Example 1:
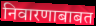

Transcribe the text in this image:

निवारणाबाबत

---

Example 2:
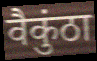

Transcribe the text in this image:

वैकुंठा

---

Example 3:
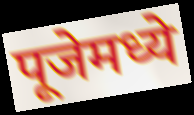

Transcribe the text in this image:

पूजेमध्ये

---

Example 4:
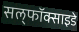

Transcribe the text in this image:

सल्फॉक्साइडे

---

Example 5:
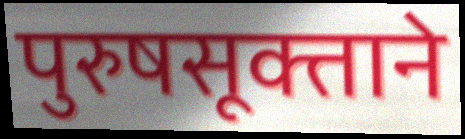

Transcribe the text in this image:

पुरुषसूक्ताने